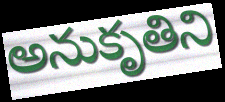
అనుకృతిని